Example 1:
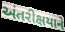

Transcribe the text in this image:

અંતરીક્ષયાને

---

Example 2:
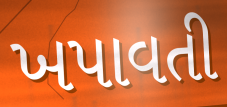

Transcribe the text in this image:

ખપાવતી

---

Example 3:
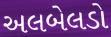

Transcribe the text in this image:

અલબેલડો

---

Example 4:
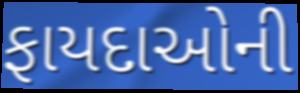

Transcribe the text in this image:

ફાયદાઓની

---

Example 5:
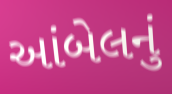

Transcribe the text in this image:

આંબેલનું